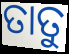
ତାତୁ